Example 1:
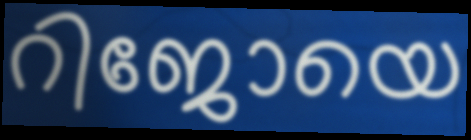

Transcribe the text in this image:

റിജോയെ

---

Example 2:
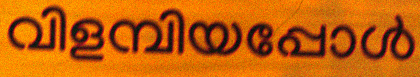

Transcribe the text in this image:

വിളമ്പിയപ്പോൾ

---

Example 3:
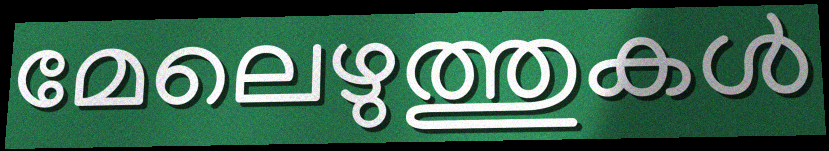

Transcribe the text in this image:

മേലെഴുത്തുകൾ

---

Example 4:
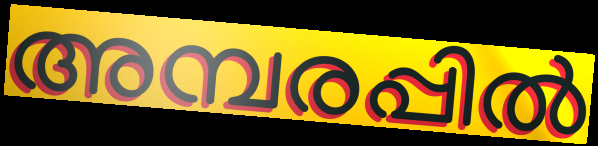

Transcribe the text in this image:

അമ്പരപ്പിൽ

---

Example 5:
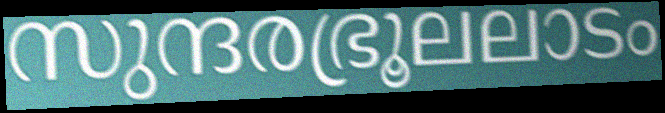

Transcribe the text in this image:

സുന്ദരഭ്രൂലലാടം